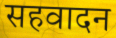
सहवादन